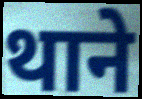
थाने